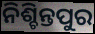
ନିଶ୍ଚିନ୍ତପୁର